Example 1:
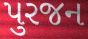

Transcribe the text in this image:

પુરજન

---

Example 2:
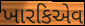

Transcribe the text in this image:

ખારકિએવ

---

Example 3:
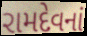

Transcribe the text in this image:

રામદેવનાં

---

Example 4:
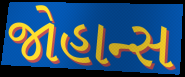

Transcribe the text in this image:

જોહાન્સ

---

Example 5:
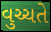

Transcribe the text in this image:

વુચ્ચતે